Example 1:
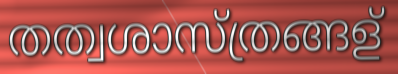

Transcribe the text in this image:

തത്വശാസ്ത്രങ്ങള്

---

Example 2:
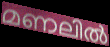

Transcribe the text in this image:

മണലിൽ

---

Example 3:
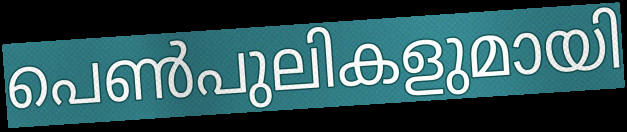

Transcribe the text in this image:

പെൺപുലികളുമായി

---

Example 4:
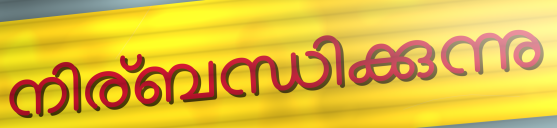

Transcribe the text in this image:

നിര്ബന്ധിക്കുന്നു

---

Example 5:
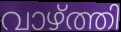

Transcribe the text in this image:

വാഴ്ത്തി